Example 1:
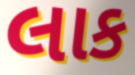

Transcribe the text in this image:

લાક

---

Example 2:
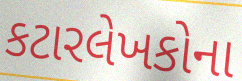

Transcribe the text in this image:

કટારલેખકોના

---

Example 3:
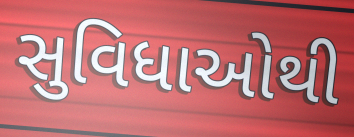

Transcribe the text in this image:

સુવિધાઓથી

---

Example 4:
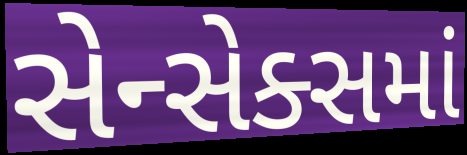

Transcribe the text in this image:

સેન્સેક્સમાં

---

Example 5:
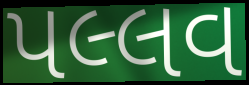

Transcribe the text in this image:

પલ્લવ